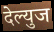
देल्युज